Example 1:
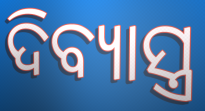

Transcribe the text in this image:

ଦିବ୍ୟାସ୍ତ୍ର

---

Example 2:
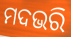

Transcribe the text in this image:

ମଦଭରି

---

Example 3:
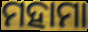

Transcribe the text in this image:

ମହାମା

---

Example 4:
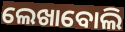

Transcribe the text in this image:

ଲେଖାବୋଲି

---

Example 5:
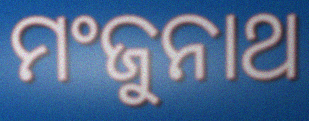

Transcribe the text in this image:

ମଂଜୁନାଥ